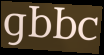
gbbc